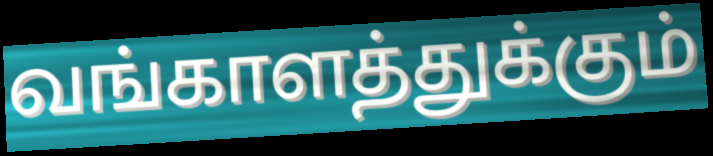
வங்காளத்துக்கும்